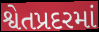
શ્વેતપ્રદરમાં